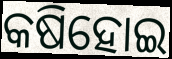
କଷିହୋଇ